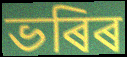
ভৰিৰ